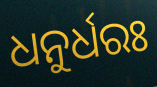
ଧନୁର୍ଧରଃ